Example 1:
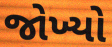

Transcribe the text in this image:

જોખ્યો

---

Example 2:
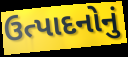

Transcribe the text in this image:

ઉત્પાદનોનું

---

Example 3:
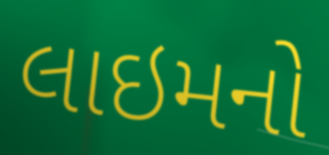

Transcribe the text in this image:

લાઇમનો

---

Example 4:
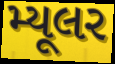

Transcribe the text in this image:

મ્યૂલર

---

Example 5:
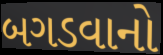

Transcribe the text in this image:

બગડવાનો